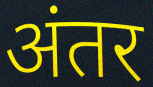
अंतर